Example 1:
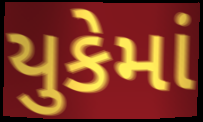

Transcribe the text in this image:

યુકેમાં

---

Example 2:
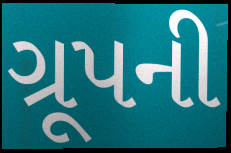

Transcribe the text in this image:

ગ્રૂપની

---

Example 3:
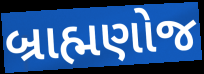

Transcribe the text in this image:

બ્રાહ્મણોજ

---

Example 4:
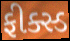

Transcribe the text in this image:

ફીક્સ્ડ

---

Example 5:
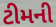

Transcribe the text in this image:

ટીમની